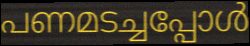
പണമടച്ചപ്പോൾ